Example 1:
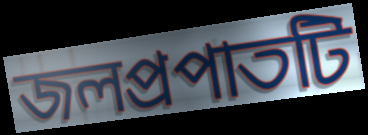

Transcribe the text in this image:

জলপ্রপাতটি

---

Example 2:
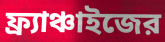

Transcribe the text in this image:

ফ্র্যাঞ্চাইজের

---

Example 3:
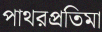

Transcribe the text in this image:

পাথরপ্রতিমা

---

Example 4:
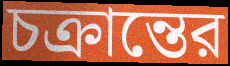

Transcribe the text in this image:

চক্রান্তের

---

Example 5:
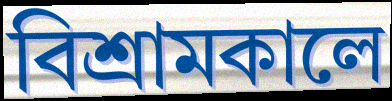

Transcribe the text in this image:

বিশ্রামকালে